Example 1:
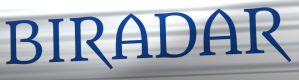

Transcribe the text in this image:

BIRADAR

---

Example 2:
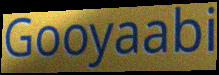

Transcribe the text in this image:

Gooyaabi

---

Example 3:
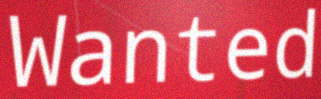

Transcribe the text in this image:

Wanted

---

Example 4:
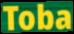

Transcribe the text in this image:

Toba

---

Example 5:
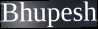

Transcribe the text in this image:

Bhupesh